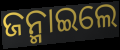
ଜନ୍ମାଇଲେ